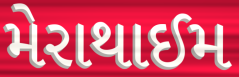
મેરાથાઈમ